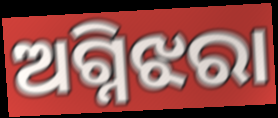
ଅଗ୍ନିଝରା